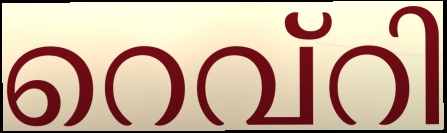
റെവ്റി